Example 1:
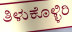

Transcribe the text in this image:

ತಿಳುಕೊಳ್ಳಿರಿ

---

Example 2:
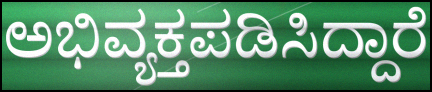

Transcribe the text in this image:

ಅಭಿವ್ಯಕ್ತಪಡಿಸಿದ್ದಾರೆ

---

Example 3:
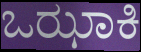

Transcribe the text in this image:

ಒಝಾಕಿ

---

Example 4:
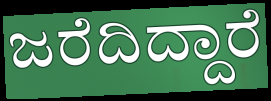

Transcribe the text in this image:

ಜರೆದಿದ್ದಾರೆ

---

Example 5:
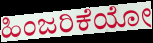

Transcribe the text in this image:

ಹಿಂಜರಿಕೆಯೋ